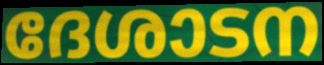
ദേശാടന